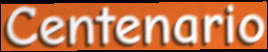
Centenario